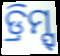
ଡ୍ରିମ୍ସ୍